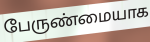
பேருண்மையாக